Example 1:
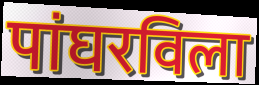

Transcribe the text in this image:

पांघरविला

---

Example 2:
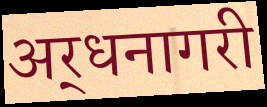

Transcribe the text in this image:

अर्धनागरी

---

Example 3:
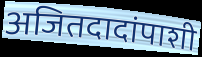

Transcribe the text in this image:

अजितदादांपाशी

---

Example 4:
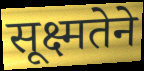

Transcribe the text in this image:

सूक्ष्मतेने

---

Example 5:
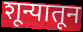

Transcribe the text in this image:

शून्यातून